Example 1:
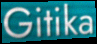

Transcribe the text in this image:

Gitika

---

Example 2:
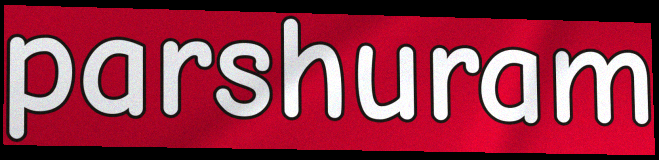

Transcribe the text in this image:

parshuram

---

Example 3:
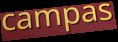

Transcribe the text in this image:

campas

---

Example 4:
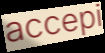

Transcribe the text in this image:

accepi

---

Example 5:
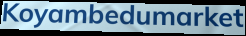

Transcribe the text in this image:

Koyambedumarket